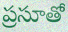
ప్రసూతో